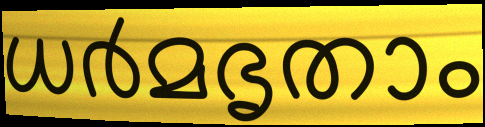
ധർമഭൃതാം